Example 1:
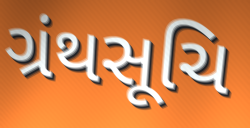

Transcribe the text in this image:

ગ્રંથસૂચિ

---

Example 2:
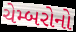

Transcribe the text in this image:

ચેમ્બરોનો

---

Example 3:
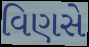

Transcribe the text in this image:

વિણસે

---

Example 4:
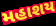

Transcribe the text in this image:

મહાશય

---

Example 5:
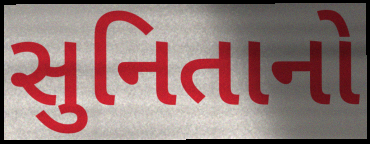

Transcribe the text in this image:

સુનિતાનો